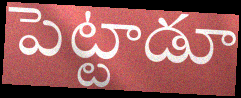
పెట్టాడూ